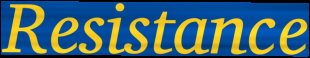
Resistance